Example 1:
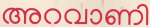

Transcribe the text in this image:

അറവാണി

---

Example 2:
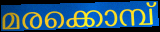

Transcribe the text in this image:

മരക്കൊമ്പ്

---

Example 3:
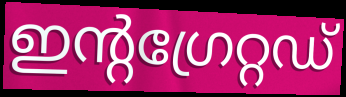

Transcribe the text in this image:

ഇന്റഗ്രേറ്റഡ്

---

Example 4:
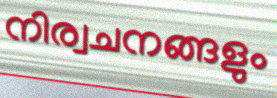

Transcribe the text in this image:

നിര്വചനങ്ങളും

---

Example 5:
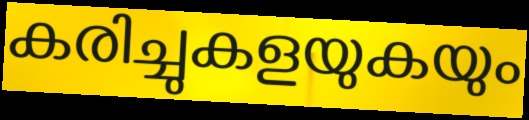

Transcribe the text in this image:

കരിച്ചുകളയുകയും